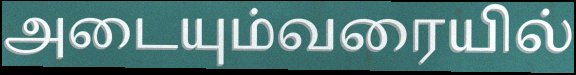
அடையும்வரையில்